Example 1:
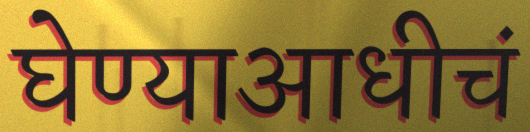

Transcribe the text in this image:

घेण्याआधीचं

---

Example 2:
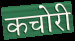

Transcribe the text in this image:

कचोरी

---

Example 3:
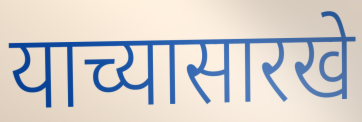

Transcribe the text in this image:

याच्यासारखे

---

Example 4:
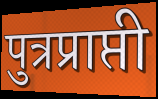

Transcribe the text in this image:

पुत्रप्राप्ती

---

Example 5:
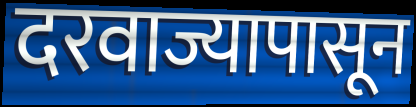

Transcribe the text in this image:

दरवाज्यापासून